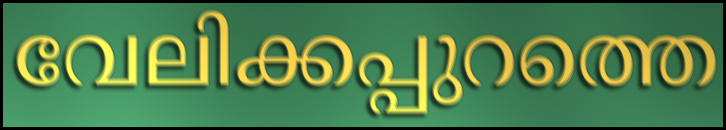
വേലിക്കപ്പുറത്തെ